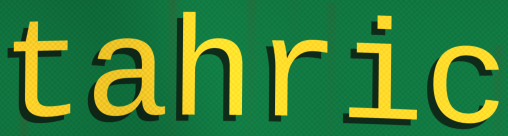
tahric